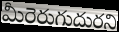
మీరెరుగుదురని